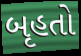
બૃહતો